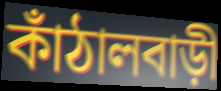
কাঁঠালবাড়ী